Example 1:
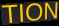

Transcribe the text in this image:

TION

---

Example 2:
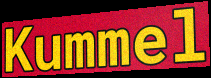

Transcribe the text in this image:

Kummel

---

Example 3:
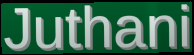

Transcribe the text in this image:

Juthani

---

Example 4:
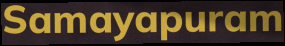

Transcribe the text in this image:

Samayapuram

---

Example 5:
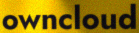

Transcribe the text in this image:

owncloud